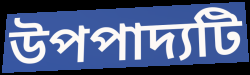
উপপাদ্যটি